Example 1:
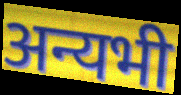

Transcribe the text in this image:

अन्यभी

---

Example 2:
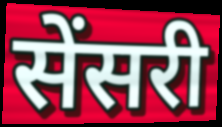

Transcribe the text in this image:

सेंसरी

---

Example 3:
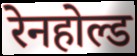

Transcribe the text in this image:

रेनहोल्ड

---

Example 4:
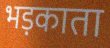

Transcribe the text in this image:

भड़काता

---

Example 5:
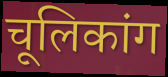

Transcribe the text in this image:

चूलिकांग